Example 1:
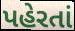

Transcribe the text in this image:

પહેરતાં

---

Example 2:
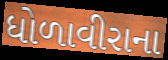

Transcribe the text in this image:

ધોળાવીરાના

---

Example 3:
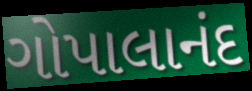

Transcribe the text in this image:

ગોપાલાનંદ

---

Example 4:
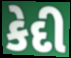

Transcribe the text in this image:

કેદી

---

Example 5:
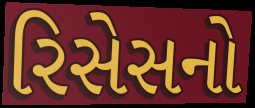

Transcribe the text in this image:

રિસેસનો